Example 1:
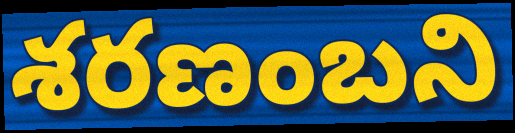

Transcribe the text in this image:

శరణంబని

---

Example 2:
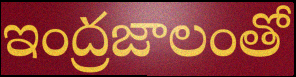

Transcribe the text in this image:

ఇంద్రజాలంతో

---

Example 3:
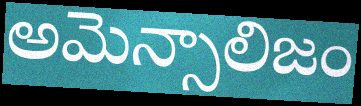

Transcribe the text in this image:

అమెన్సాలిజం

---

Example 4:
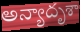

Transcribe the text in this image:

అన్యాదృశా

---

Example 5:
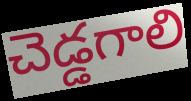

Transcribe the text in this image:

చెడ్డగాలి